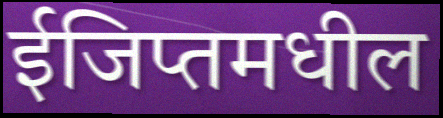
ईजिप्तमधील